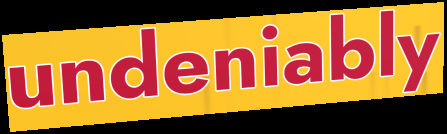
undeniably